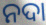
ନଦା